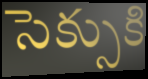
సెక్సుకి